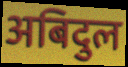
अबिदुल